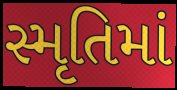
સ્મૃતિમાં